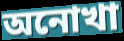
অনোখা